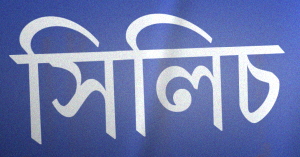
সিলিচ